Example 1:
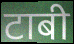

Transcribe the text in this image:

टाबी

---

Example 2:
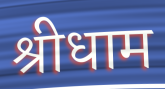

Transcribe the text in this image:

श्रीधाम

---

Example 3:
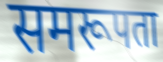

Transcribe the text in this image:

समरूपता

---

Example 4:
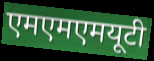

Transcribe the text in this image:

एमएमएमयूटी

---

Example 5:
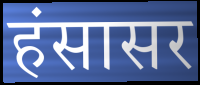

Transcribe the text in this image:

हंसासर